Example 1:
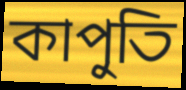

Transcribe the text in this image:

কাপুতি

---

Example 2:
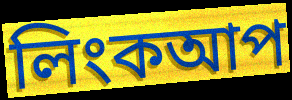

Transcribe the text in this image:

লিংকআপ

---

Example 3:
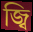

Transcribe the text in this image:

জ্বি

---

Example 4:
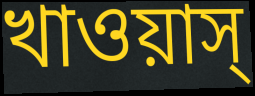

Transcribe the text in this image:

খাওয়াস্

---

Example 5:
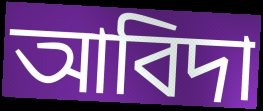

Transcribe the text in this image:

আবিদা